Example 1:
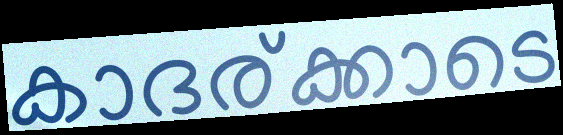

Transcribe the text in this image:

കാദര്ക്കാടെ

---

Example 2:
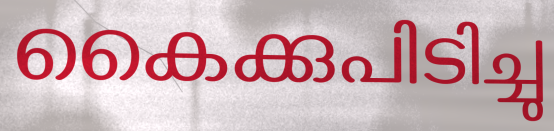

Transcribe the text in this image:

കൈക്കുപിടിച്ചു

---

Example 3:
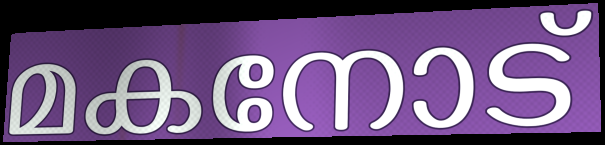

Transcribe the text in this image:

മകനോട്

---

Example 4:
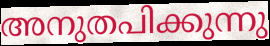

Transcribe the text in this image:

അനുതപിക്കുന്നു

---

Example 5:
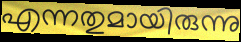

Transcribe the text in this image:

എന്നതുമായിരുന്നു